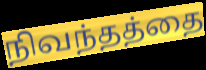
நிவந்தத்தை